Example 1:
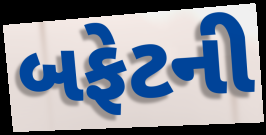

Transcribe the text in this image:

બફેટની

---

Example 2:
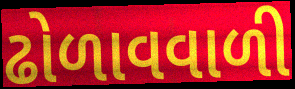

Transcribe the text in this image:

ઢોળાવવાળી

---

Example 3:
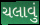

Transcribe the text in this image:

ચલાવું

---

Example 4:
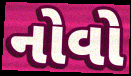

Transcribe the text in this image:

નોવો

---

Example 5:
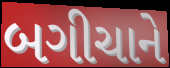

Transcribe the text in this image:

બગીચાને